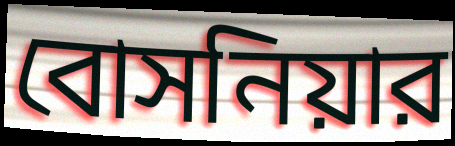
বোসনিয়ার